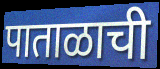
पाताळाची